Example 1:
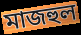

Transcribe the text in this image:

মাজহুল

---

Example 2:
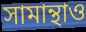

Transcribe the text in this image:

সামান্থাও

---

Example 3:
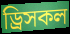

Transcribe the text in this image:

ড্রিসকল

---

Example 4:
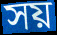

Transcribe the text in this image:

সয়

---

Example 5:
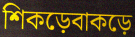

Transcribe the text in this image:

শিকড়েবাকড়ে